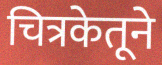
चित्रकेतूने